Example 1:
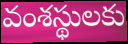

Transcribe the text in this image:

వంశస్థులకు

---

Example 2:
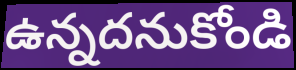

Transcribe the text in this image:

ఉన్నదనుకోండి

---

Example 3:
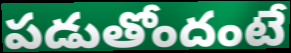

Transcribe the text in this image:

పడుతోందంటే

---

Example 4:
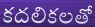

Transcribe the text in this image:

కదలికలతో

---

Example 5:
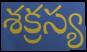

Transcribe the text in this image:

శక్రస్య